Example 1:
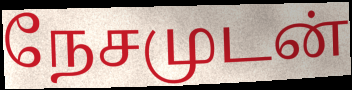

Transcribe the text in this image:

நேசமுடன்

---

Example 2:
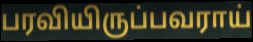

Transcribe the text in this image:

பரவியிருப்பவராய்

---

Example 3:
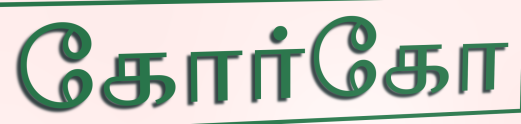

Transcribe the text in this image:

கோர்கோ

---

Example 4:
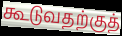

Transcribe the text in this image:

கூடுவதற்குத்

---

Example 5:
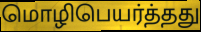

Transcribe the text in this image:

மொழிபெயர்த்தது